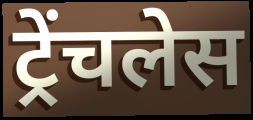
ट्रेंचलेस